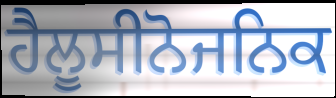
ਹੈਲੂਸੀਨੋਜਨਿਕ